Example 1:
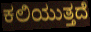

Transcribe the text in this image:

ಕಲಿಯುತ್ತದೆ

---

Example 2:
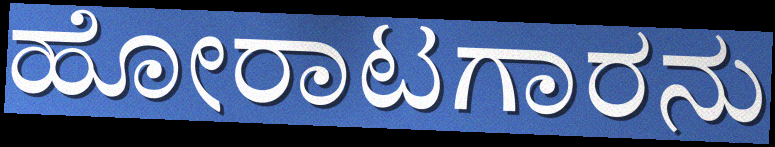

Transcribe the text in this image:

ಹೋರಾಟಗಾರನು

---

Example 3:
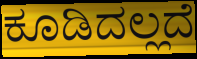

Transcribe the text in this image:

ಕೂಡಿದಲ್ಲದೆ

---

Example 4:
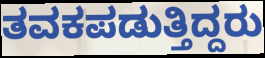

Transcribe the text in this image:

ತವಕಪಡುತ್ತಿದ್ದರು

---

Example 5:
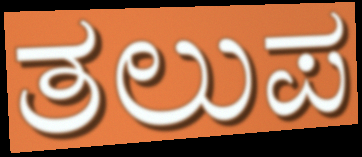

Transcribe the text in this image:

ತಲುಪ